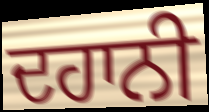
ਦਹਾਨੀ